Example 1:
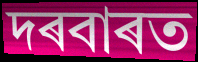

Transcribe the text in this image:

দৰবাৰত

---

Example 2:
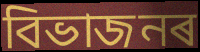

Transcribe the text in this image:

বিভাজনৰ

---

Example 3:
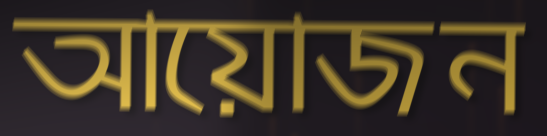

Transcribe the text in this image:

আয়োজন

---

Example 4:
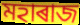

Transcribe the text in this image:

মহাৰাজ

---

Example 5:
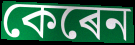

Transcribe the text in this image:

কেৰেন